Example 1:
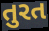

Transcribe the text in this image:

તુરત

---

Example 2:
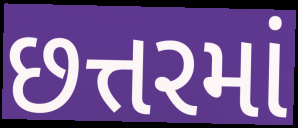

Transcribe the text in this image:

છત્તરમાં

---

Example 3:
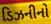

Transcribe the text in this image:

ડિઝનીનો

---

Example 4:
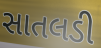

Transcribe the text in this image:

સાતલડી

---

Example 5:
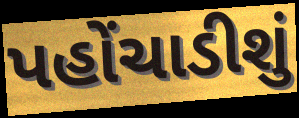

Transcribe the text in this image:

પહોંચાડીશું